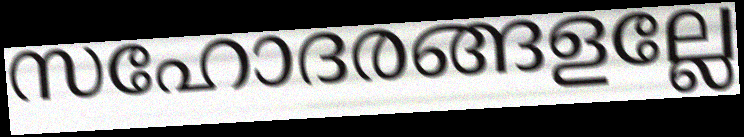
സഹോദരങ്ങളല്ലേ